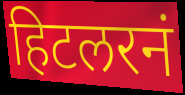
हिटलरनं